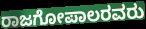
ರಾಜಗೋಪಾಲರವರು